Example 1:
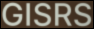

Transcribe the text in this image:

GISRS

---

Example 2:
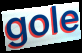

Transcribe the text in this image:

gole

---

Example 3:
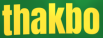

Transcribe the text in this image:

thakbo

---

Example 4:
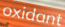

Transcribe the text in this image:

oxidant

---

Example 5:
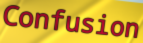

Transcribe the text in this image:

Confusion